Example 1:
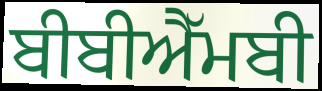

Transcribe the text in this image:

ਬੀਬੀਐੱਮਬੀ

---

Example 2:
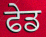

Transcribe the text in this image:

ਫੇਡ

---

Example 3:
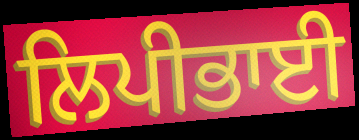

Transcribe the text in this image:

ਲਿਪੀਭਾਈ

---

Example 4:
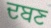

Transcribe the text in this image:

ਦਬਣ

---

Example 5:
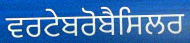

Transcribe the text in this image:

ਵਰਟੇਬਰੋਬੈਸਿਲਰ